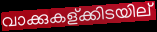
വാക്കുകള്ക്കിടയില്